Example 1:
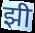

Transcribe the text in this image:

झी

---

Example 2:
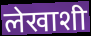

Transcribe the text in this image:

लेखाशी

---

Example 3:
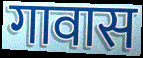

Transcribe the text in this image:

गावास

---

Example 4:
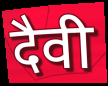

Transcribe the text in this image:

दैवी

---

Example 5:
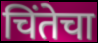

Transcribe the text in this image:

चिंतेचा